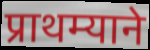
प्राथम्याने